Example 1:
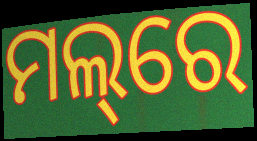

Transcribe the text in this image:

ମଲ୍‌ରେ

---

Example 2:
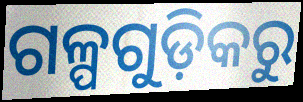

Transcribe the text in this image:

ଗଳ୍ପଗୁଡ଼ିକରୁ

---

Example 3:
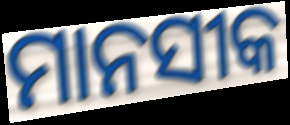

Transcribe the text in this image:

ମାନସୀକ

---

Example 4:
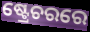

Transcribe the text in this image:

ଷ୍ଟ୍ରେଚରରେ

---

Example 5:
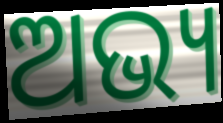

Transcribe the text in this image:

ଅଭ୍ୟ